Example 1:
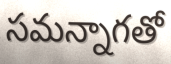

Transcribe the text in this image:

సమన్నాగతో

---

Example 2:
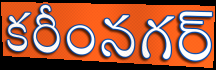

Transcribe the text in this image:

కరీంనగర్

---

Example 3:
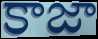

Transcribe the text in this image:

కాజా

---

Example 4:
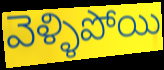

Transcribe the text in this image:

వెళ్ళిపోయి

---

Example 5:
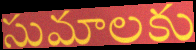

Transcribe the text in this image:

సుమాలకు